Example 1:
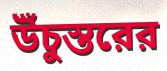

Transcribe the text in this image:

উঁচুস্তরের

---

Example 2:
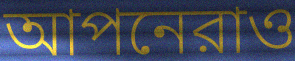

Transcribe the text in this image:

আপনেরাও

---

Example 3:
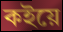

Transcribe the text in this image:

কইয়ে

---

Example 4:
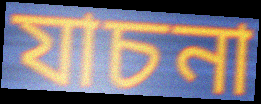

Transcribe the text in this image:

যাচনা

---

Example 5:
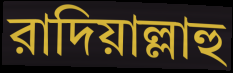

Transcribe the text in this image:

রাদিয়াল্লাহু